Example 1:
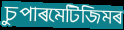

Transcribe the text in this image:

চুপাৰমেটিজিমৰ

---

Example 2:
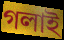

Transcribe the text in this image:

গলাই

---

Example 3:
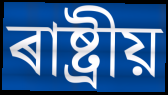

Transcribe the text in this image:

ৰাষ্ট্ৰীয়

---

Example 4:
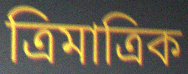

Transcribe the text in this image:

ত্ৰিমাত্ৰিক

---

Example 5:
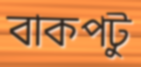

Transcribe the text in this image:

বাকপটু